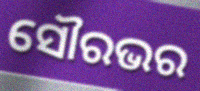
ସୌରଭର